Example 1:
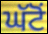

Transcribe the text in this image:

ਘੱਟੋਂ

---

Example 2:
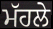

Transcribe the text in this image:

ਮੱਹਲੇ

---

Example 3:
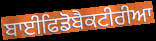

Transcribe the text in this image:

ਬਾਈਫਿਡੋਬੈਕਟੀਰੀਆ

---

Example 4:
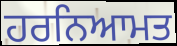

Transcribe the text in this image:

ਹਰਨਿਆਮਤ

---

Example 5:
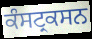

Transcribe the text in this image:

ਕੰਸਟ੍ਰਕਸਨ